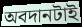
অবদানটাই